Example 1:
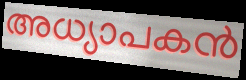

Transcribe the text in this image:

അധ്യാപകൻ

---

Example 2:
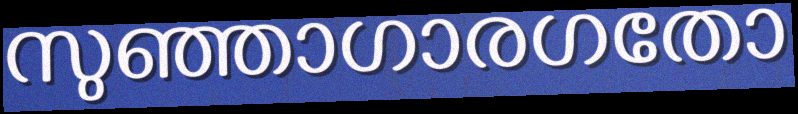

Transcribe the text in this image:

സുഞ്ഞാഗാരഗതോ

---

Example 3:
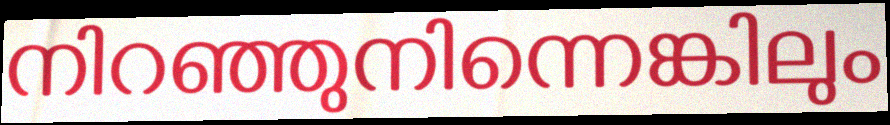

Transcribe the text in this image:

നിറഞ്ഞുനിന്നെങ്കിലും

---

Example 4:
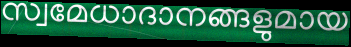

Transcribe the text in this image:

സ്വമേധാദാനങ്ങളുമായ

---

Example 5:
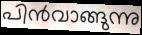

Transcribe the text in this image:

പിൻവാങ്ങുന്നു